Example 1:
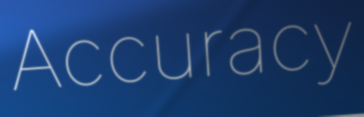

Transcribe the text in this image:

Accuracy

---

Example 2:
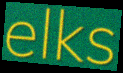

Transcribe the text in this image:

elks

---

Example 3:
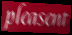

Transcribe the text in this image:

pleasent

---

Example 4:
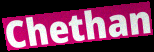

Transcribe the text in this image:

Chethan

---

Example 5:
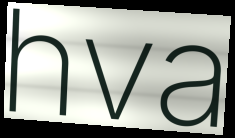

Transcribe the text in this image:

hva